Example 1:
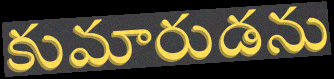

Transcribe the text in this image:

కుమారుడను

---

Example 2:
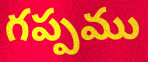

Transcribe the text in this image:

గప్పము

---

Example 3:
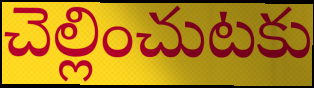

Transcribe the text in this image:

చెల్లించుటకు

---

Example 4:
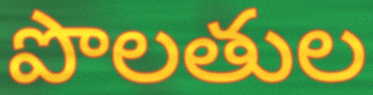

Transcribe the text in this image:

పొలతుల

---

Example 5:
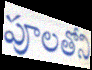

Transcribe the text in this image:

పూలతోని